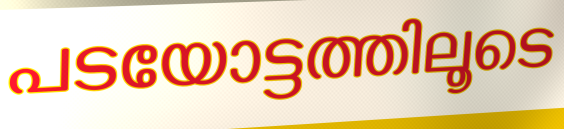
പടയോട്ടത്തിലൂടെ